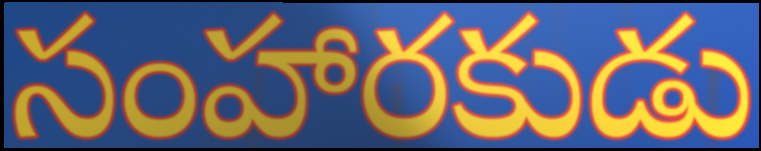
సంహారకుడు